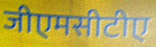
जीएमसीटीए